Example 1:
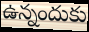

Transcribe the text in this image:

ఉన్నందుకు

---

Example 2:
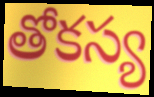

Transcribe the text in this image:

తోకస్య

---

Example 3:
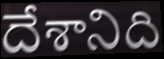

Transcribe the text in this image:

దేశానిది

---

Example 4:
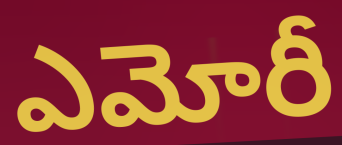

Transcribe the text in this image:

ఎమోరీ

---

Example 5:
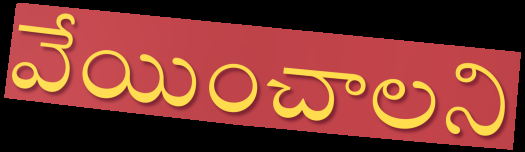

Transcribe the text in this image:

వేయించాలని